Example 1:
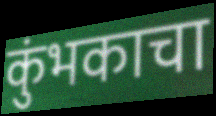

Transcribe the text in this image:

कुंभकाचा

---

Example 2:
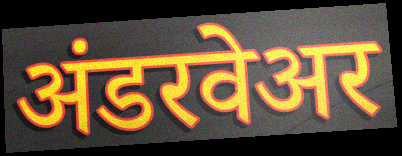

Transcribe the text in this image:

अंडरवेअर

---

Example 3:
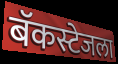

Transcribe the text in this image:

बॅकस्टेजला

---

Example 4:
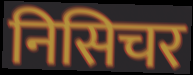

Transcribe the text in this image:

निसिचर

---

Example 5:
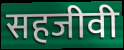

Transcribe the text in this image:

सहजीवी